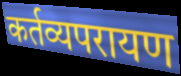
कर्तव्यपरायण